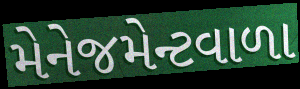
મેનેજમેન્ટવાળા